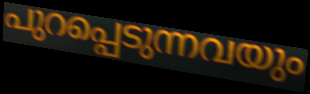
പുറപ്പെടുന്നവയും